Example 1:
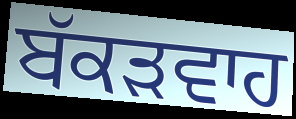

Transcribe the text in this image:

ਬੱਕੜਵਾਹ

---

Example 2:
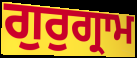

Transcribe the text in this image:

ਗੁਰੁਗ੍ਰਾਮ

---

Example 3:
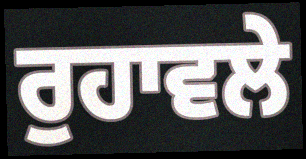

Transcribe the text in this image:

ਰੁਹਾਵਲੇ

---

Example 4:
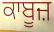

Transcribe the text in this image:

ਕਾਬੂਜ਼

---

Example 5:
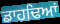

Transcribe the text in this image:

ਡਾਹਢਿਆਂ